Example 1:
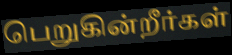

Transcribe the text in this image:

பெறுகின்றீர்கள்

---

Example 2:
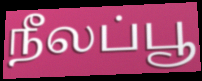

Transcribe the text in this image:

நீலப்பூ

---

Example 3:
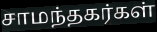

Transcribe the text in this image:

சாமந்தகர்கள்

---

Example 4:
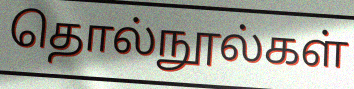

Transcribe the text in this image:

தொல்நூல்கள்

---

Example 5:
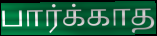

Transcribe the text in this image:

பார்க்காத